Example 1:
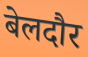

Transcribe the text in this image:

बेलदौर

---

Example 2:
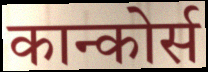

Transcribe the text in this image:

कान्कोर्स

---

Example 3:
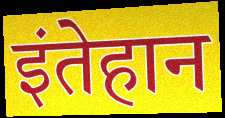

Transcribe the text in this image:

इंतेहान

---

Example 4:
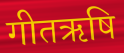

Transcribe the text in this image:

गीतऋषि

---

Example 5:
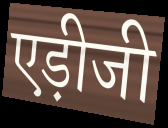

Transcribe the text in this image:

एड़ीजी